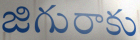
జిగురాకు